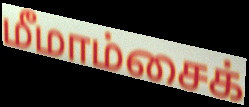
மீமாம்சைக்